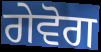
ਗੇਵੋਗ